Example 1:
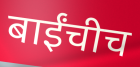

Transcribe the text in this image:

बाईंचीच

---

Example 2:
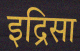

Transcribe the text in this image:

इद्रिसा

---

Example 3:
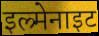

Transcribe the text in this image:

इल्मेनाइट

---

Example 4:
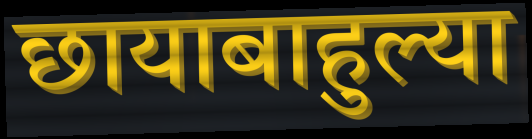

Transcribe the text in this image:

छायाबाहुल्या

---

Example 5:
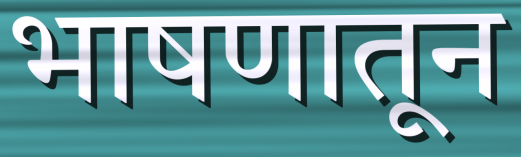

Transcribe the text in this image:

भाषणातून